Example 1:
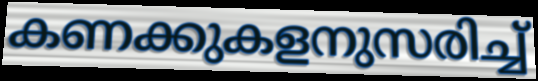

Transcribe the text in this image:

കണക്കുകളനുസരിച്ച്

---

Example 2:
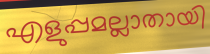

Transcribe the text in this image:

എളുപ്പമല്ലാതായി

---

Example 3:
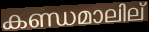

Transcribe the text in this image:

കണ്ഡമാലില്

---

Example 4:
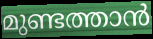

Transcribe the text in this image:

മുണ്ടത്താൻ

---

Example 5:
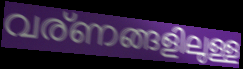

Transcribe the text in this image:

വര്ണങ്ങളിലുള്ള